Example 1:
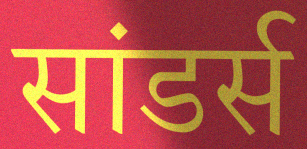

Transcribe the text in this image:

सांडर्स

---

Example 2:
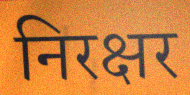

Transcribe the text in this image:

निरक्षर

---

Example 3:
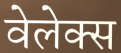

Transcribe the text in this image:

वेलेक्स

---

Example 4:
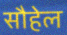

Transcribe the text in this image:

सौहेल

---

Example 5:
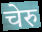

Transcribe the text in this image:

चेरु